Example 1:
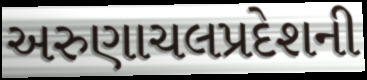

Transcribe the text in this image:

અરુણાચલપ્રદેશની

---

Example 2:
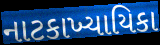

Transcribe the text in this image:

નાટકાખ્યાયિકા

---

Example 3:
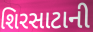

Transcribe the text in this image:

શિરસાટાની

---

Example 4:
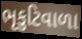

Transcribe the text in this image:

ભૃકુટિવાળા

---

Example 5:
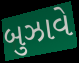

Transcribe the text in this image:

બુઝાવે